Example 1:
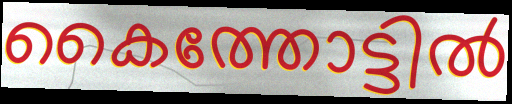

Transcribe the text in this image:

കൈത്തോട്ടിൽ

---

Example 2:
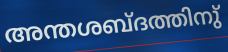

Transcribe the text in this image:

അന്തശബ്ദത്തിനു്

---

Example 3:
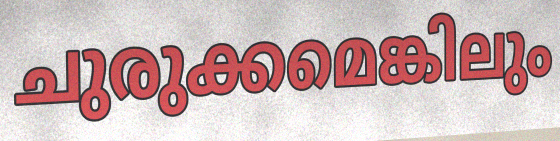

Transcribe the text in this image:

ചുരുക്കമെങ്കിലും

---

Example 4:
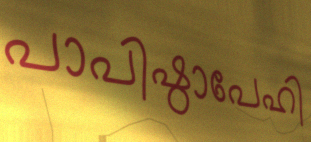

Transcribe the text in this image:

പാപിഷ്ഠാപേഹി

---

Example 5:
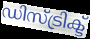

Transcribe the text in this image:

ഡിസ്ട്രിക്ട്